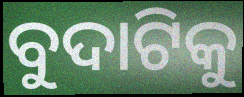
ବୁଦାଟିକୁ